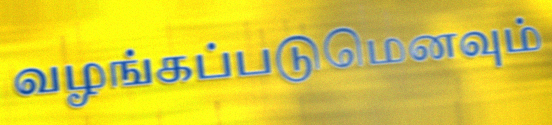
வழங்கப்படுமெனவும்